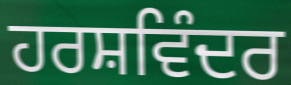
ਹਰਸ਼ਵਿੰਦਰ